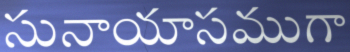
సునాయాసముగా